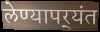
लेण्यापर्यंत